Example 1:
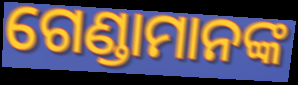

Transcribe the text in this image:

ଗେଣ୍ଡାମାନଙ୍କ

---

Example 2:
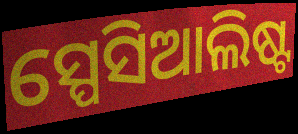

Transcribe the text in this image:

ସ୍ପେସିଆଲିଷ୍ଟ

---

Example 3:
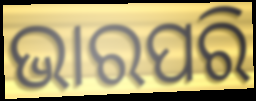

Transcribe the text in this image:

ଭାରପରି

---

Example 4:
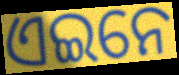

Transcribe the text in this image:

ଏଇନେ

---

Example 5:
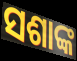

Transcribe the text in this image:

ସଶାଙ୍କ